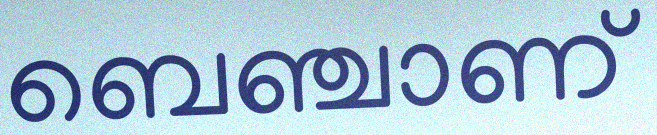
ബെഞ്ചാണ്